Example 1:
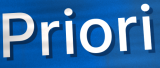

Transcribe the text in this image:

Priori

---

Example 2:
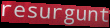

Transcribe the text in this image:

resurgunt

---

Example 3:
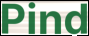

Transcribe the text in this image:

Pind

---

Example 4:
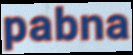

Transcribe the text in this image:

pabna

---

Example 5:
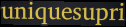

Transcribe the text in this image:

uniquesupri